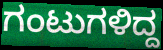
ಗಂಟುಗಳಿದ್ದ